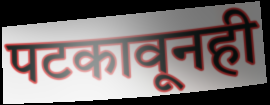
पटकावूनही